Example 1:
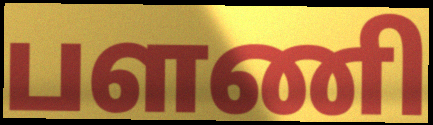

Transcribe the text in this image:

பளணி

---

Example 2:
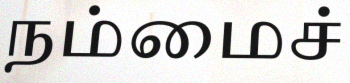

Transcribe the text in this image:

நம்மைச்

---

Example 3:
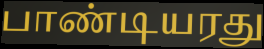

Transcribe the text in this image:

பாண்டியரது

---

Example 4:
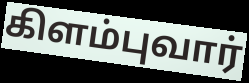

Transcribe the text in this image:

கிளம்புவார்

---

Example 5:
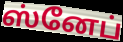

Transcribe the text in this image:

ஸ்னேப்